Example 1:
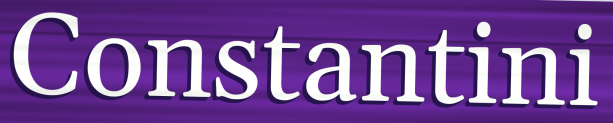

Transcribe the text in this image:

Constantini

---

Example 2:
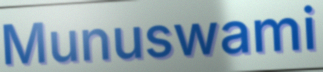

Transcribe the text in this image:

Munuswami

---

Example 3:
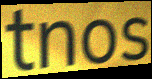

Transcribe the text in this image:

tnos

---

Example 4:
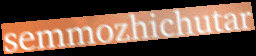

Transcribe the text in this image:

semmozhichutar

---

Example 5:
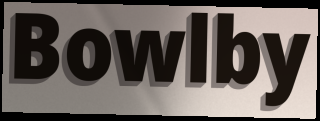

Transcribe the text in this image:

Bowlby